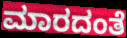
ಮಾರದಂತೆ